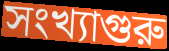
সংখ্যাগুরু